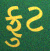
ફ્રુટ